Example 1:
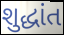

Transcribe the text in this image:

શુદ્ધાંત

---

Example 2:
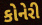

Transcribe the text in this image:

કોનેરી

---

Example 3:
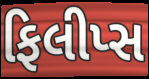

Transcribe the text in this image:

ફિલીપ્સ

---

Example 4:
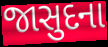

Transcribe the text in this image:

જાસુદના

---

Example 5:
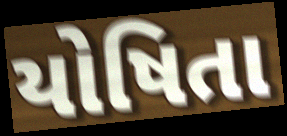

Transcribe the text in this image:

યોષિતા